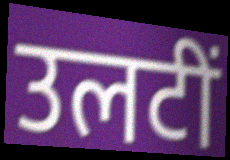
उलटीं